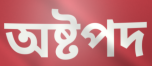
অষ্টপদ